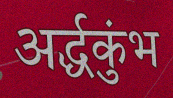
अर्द्धकुंभ